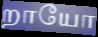
றாயோ